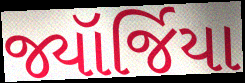
જ્યૉર્જિયા